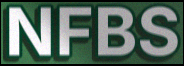
NFBS